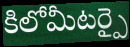
కిలోమీటర్పై